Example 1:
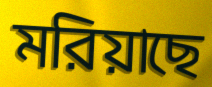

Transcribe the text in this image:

মরিয়াছে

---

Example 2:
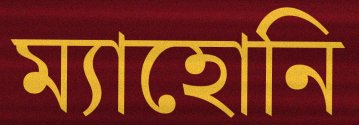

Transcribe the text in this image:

ম্যাহোনি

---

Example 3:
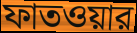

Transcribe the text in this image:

ফাতওয়ার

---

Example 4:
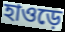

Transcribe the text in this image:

হাওড়ে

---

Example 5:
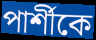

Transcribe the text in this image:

পার্শীকে